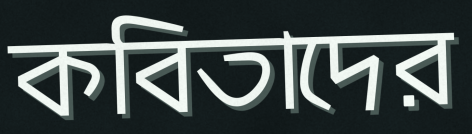
কবিতাদের